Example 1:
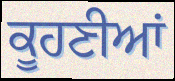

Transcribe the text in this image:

ਕੂਹਣੀਆਂ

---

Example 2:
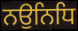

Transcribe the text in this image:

ਨਉਨਿਧਿ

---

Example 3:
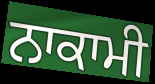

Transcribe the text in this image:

ਨਾਕਾਮੀ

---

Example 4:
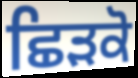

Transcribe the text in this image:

ਛਿੜਕੋ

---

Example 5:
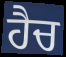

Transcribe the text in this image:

ਹੈਚ